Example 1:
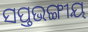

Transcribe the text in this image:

ସପ୍ତଭଙ୍ଗୀୟ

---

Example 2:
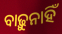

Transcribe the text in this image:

ବାଢ଼ୁନାହିଁ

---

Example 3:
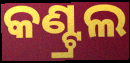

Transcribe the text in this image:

କଣ୍ଟ୍ରଲ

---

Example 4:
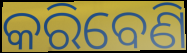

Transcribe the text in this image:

କରିବେଣି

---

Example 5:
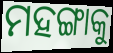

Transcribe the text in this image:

ମହଙ୍ଗାକୁ